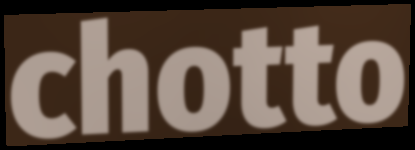
chotto